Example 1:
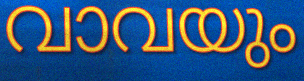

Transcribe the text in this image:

വാവയും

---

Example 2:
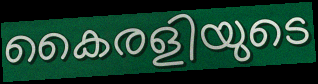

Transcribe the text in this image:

കൈരളിയുടെ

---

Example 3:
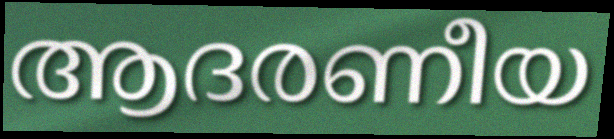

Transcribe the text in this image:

ആദരണീയ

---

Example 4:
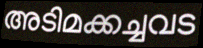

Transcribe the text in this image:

അടിമക്കച്ചവട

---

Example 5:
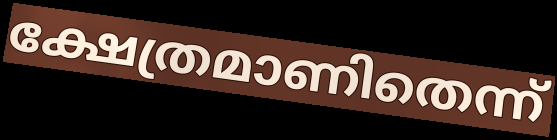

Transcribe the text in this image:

ക്ഷേത്രമാണിതെന്ന്